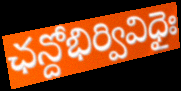
ఛన్దోభిర్వివిధైః